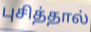
புசித்தால்